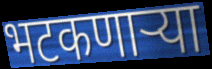
भटकणार्‍या